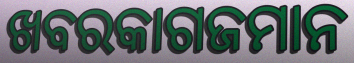
ଖବରକାଗଜମାନ